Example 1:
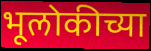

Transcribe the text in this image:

भूलोकीच्या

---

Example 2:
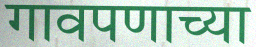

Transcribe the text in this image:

गावपणाच्या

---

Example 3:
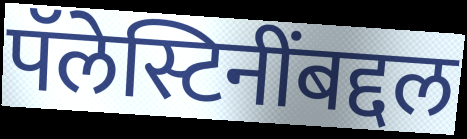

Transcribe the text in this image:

पॅलेस्टिनींबद्दल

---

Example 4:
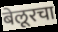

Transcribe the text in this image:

बेलूरचा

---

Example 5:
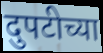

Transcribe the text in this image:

दुपटीच्या